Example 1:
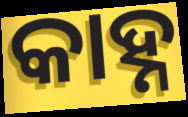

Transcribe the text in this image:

କାହ୍ନ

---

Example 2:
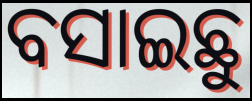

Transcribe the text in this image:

ବସାଇଛୁ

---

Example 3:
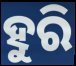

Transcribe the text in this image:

ହୁରି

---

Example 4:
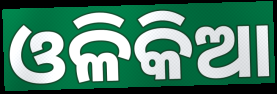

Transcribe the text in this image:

ଓଳିକିଆ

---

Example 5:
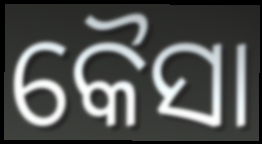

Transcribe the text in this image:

କୈସା